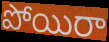
పోయిరా